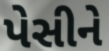
પેસીને